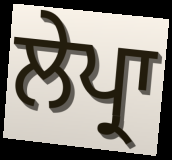
ਲੇਪ੍ਰਾ